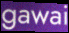
gawai